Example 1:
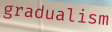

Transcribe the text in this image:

gradualism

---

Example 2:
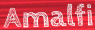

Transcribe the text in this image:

Amalfi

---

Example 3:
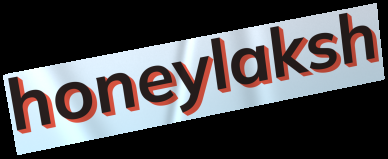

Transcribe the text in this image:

honeylaksh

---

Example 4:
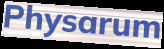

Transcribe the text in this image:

Physarum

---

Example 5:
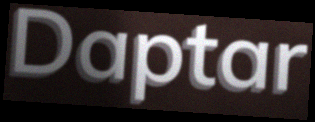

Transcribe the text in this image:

Daptar